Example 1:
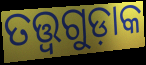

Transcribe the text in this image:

ତତ୍ତ୍ୱଗୁଡ଼ାକ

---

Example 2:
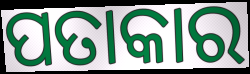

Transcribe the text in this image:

ପତାକାର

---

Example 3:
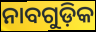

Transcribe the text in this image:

ନାବଗୁଡ଼ିକ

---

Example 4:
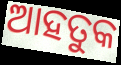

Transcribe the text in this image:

ଆହତୁକ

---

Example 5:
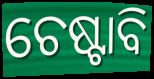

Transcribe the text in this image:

ଚେଷ୍ଟାବି